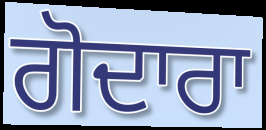
ਗੋਦਾਰਾ